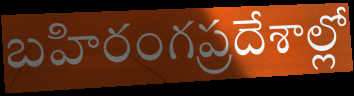
బహిరంగప్రదేశాల్లో